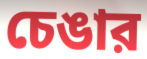
চেঙার